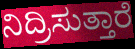
ನಿದ್ರಿಸುತ್ತಾರೆ